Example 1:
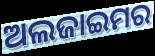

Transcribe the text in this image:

ଅଲଜାଇମର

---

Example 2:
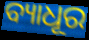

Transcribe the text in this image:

ବ୍ୟାଧୂର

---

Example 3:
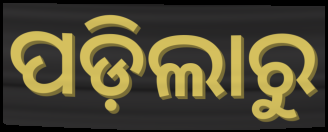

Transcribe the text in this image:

ପଡ଼ିଲାରୁ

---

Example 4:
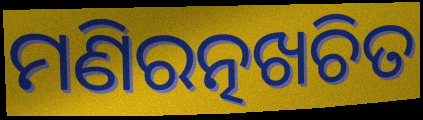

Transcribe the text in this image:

ମଣିରତ୍ନଖଚିତ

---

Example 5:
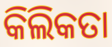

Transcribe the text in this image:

କିଲିକତା